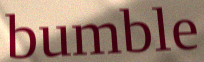
bumble